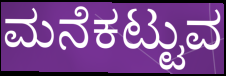
ಮನೆಕಟ್ಟುವ